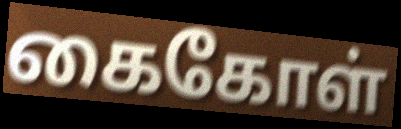
கைகோள்